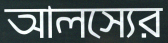
আলস্যের